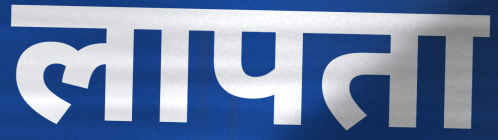
लापता